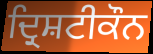
ਦ੍ਰਿਸ਼ਟੀਕੌਨ